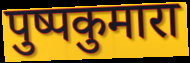
पुष्पकुमारा